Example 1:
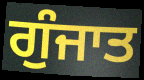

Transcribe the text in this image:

ਗੁੰਜਾਤ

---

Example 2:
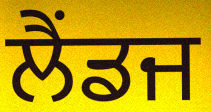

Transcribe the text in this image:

ਲੈਂਡਜ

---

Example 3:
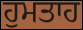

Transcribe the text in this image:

ਹੁਮਤਾਹ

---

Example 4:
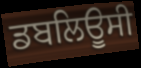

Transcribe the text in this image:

ਡਬਲਿਊਸੀ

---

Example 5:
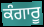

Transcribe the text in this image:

ਕੰਗਾਰੂ